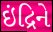
ઇંદ્રિને